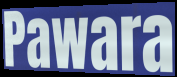
Pawara